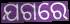
ଯଗରେ